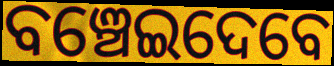
ବଞ୍ଚେଇଦେବେ